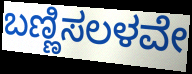
ಬಣ್ಣಿಸಲಳವೇ